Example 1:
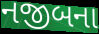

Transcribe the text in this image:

નજીબના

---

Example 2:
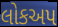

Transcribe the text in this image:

લોકઅપ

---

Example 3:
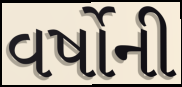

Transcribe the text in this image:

વર્ષોની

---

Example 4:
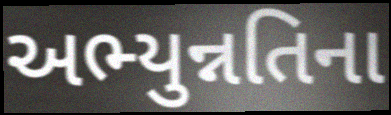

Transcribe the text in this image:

અભ્યુન્નતિના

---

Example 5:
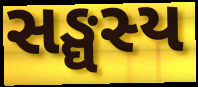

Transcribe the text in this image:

સઙ્ઘસ્ય